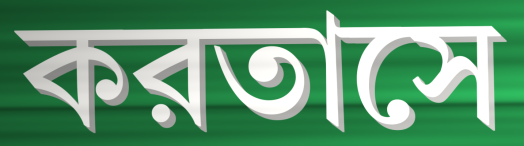
করতাসে